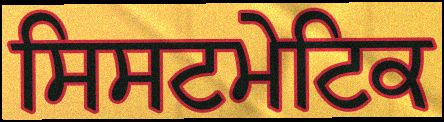
ਸਿਸਟਮੇਟਿਕ